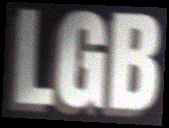
LGB